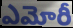
ఎమోరీ